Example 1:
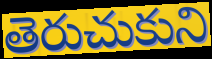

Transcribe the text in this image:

తెరుచుకుని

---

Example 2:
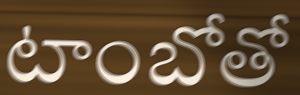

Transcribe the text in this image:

టాంబోతో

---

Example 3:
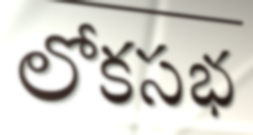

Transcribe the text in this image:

లోకసభ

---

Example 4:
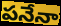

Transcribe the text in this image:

పనేనా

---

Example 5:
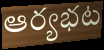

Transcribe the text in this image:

ఆర్యభట